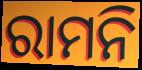
ରାମନି